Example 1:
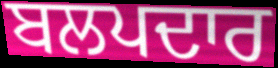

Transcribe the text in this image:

ਬਲਪਦਾਰ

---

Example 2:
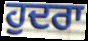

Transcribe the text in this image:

ਹੁਦਰਾ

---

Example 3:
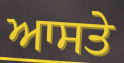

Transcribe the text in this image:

ਆਸਤੇ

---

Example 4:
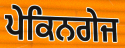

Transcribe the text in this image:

ਪੇਕਿਨਗੇਜ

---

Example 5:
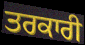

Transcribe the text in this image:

ਤਰਕਾਰੀ